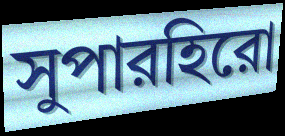
সুপারহিরো